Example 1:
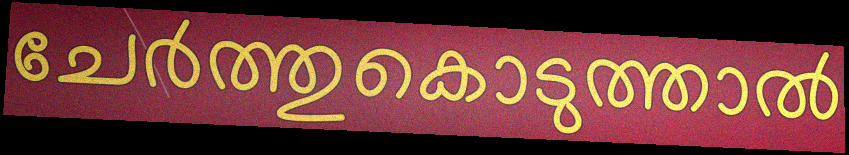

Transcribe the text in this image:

ചേർത്തുകൊടുത്താൽ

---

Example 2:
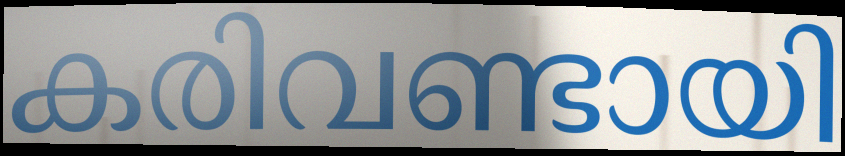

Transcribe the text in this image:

കരിവണ്ടായി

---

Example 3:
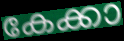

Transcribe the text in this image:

കേക്കാ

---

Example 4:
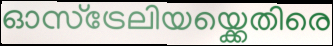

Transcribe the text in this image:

ഓസ്ട്രേലിയയ്ക്കെതിരെ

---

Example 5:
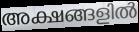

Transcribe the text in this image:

അക്ഷങ്ങളിൽ